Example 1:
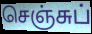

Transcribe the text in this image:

செஞ்சுப்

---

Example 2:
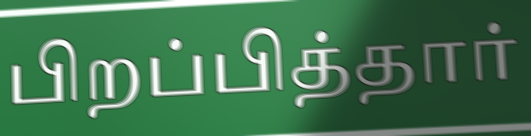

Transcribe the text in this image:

பிறப்பித்தார்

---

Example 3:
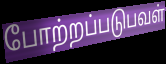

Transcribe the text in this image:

போற்றப்படுபவள்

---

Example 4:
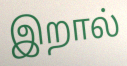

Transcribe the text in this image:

இறால்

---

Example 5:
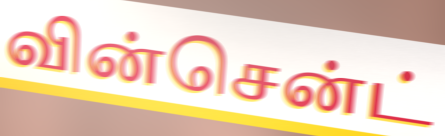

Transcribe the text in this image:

வின்சென்ட்